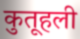
कुतूहली